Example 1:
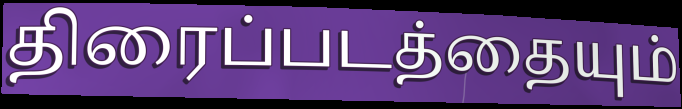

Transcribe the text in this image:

திரைப்படத்தையும்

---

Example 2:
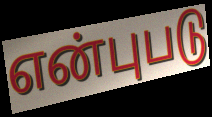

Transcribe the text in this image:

என்புபடு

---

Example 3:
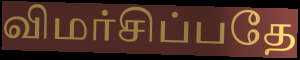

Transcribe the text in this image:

விமர்சிப்பதே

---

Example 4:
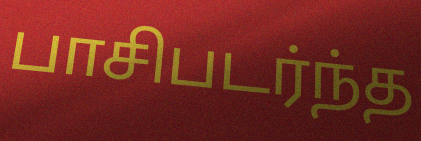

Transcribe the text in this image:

பாசிபடர்ந்த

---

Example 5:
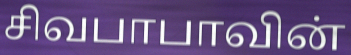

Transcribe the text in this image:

சிவபாபாவின்